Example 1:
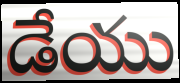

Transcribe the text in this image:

డేయు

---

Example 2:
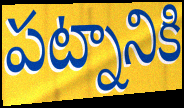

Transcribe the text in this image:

పట్నానికి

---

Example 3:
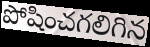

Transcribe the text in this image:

పోషించగలిగిన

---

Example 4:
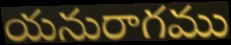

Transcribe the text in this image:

యనురాగము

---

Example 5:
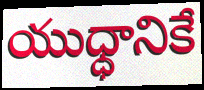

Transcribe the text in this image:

యుధ్ధానికే